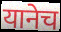
यानेच